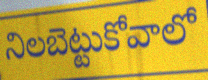
నిలబెట్టుకోవాలో